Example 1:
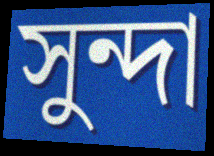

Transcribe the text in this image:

সুন্দা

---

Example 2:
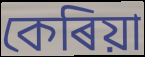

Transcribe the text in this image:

কেৰিয়া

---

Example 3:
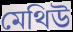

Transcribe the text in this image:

মেথিউ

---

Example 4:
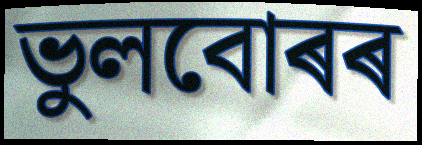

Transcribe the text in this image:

ভুলবোৰৰ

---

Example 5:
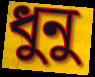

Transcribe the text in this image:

ধুনু